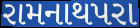
રામનાથપરા